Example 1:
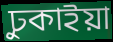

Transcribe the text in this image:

ঢুকাইয়া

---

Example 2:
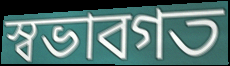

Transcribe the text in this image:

স্বভাবগত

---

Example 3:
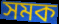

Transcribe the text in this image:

সমক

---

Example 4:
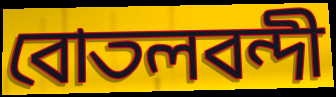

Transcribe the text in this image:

বোতলবন্দী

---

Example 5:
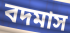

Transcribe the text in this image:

বদমাস